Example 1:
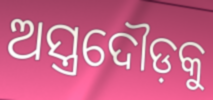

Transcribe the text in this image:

ଅସ୍ତ୍ରଦୌଡ଼କୁ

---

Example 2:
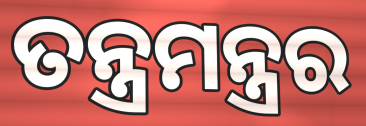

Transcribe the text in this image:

ତନ୍ତ୍ରମନ୍ତ୍ରର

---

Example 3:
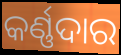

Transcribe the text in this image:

କର୍ଣ୍ଣଦାର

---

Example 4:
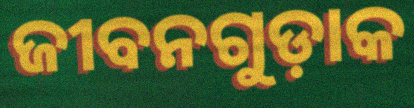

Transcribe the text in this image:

ଜୀବନଗୁଡ଼ାକ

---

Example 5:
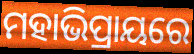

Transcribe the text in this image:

ମହାଭିପ୍ରାୟରେ